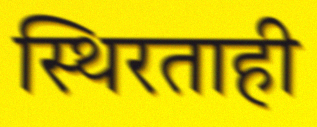
स्थिरताही